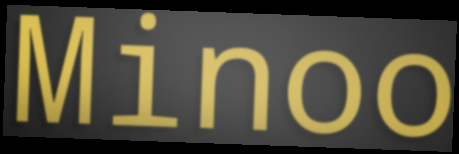
Minoo